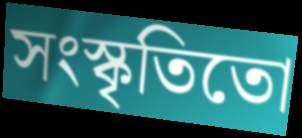
সংস্কৃতিতো